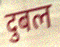
दुबल